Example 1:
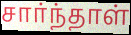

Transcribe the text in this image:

சார்ந்தாள்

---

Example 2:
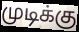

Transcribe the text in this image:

முடிக்கு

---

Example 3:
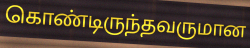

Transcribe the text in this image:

கொண்டிருந்தவருமான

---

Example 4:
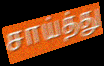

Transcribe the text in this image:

சாய்த்து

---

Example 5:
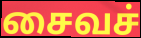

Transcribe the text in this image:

சைவச்